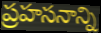
ప్రహసనాన్ని